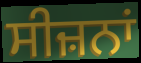
ਸੀਜ਼ਨਾਂ